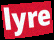
lyre